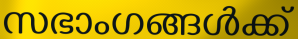
സഭാംഗങ്ങൾക്ക്